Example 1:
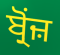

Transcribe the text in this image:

ਬ੍ਰੋਂਜ਼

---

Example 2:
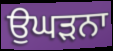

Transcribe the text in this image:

ਉਘੜਨਾ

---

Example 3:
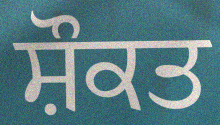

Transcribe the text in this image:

ਸ਼ੌਕਤ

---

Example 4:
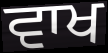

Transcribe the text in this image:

ਵਾਖ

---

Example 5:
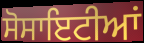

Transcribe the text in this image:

ਸੋਸਾਇਟੀਆਂ